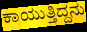
ಕಾಯುತ್ತಿದ್ದನು